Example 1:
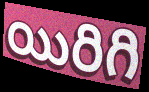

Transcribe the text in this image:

యిరిగి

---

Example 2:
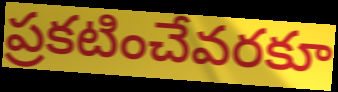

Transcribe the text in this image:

ప్రకటించేవరకూ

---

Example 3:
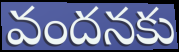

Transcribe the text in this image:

వందనకు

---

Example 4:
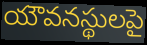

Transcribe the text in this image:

యౌవనస్థులపై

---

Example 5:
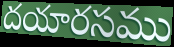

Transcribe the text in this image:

దయారసము